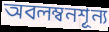
অবলম্বনশূন্য